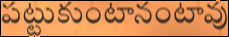
పట్టుకుంటానంటావు